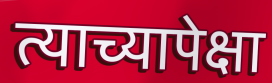
त्याच्यापेक्षा